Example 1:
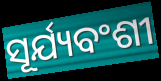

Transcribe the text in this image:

ସୂର୍ଯ୍ୟବଂଶୀ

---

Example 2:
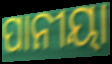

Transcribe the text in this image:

ପାନୀୟା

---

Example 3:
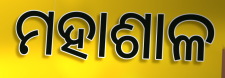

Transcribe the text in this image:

ମହାଶାଳ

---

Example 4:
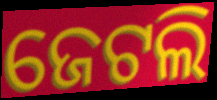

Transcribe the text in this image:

ଜେଟଲି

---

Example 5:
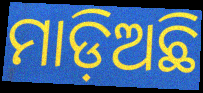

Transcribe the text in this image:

ମାଡ଼ିଅଛି